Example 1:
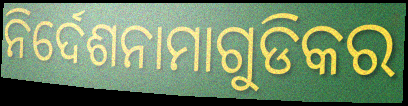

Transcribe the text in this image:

ନିର୍ଦେଶନାମାଗୁଡିକର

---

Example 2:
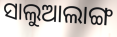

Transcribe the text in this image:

ସାଲୁଆଲାଙ୍ଗ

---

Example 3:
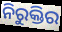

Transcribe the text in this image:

ନିରୁକ୍ତିର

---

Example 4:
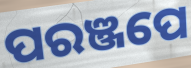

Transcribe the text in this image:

ପରଞ୍ଜପେ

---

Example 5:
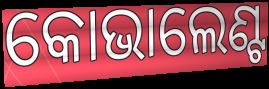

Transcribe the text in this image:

କୋଭାଲେଣ୍ଟ